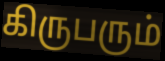
கிருபரும்